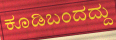
ಕೂಡಿಬಂದದ್ದು